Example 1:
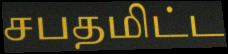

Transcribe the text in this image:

சபதமிட்ட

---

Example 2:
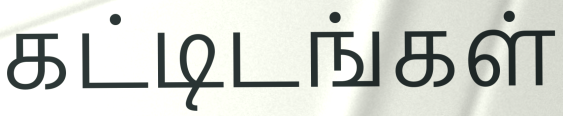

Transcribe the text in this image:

கட்டிடங்கள்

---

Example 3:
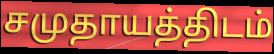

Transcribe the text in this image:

சமுதாயத்திடம்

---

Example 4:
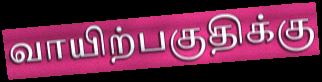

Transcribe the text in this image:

வாயிற்பகுதிக்கு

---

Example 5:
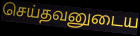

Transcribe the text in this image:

செய்தவனுடைய